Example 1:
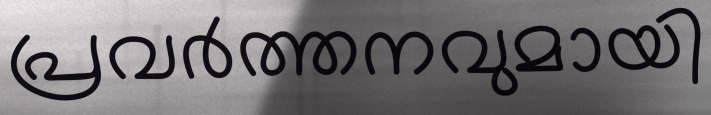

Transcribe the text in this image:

പ്രവർത്തനവുമായി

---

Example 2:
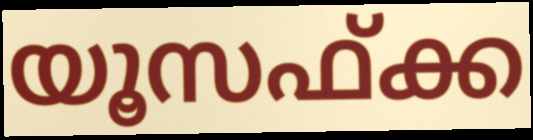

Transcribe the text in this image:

യൂസഫ്ക്ക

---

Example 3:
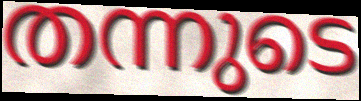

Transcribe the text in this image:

തന്നുടെ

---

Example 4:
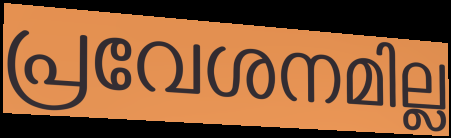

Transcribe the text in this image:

പ്രവേശനമില്ല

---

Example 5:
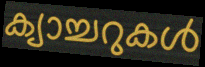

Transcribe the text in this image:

ക്യാച്ചറുകൾ